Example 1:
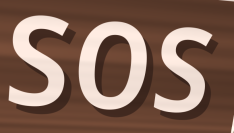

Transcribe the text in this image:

sos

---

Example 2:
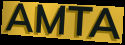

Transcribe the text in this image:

AMTA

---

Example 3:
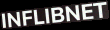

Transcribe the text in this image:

INFLIBNET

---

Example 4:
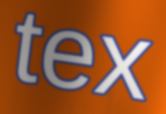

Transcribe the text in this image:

tex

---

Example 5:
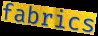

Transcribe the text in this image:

fabrics